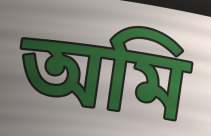
অমি